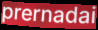
prernadai